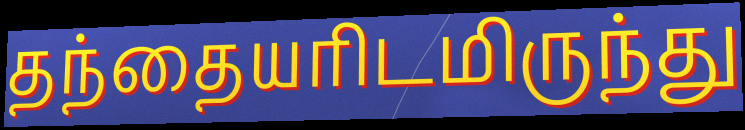
தந்தையரிடமிருந்து